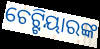
ଚେଟ୍ଟିୟାରଙ୍କ